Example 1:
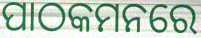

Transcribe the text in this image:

ପାଠକମନରେ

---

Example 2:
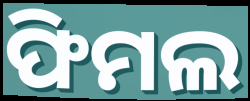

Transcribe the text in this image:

ଫିମଲ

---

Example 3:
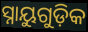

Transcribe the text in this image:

ସ୍ନାୟୁଗୁଡ଼ିକ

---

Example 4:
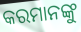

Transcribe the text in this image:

କରମାନଙ୍କୁ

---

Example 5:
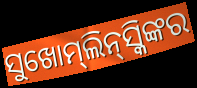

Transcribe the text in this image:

ସୁଖୋମ୍‍ଲିନ୍‍ସ୍କିଙ୍କର